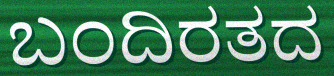
ಬಂದಿರತದ